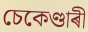
চেকেণ্ডাৰী